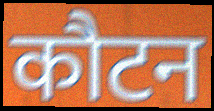
कौटन